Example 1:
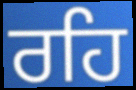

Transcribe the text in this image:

ਰਹਿ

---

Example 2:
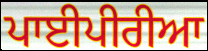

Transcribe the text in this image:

ਪਾਈਪੀਰੀਆ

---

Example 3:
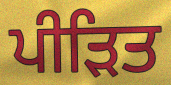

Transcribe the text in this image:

ਪੀੜਿਤ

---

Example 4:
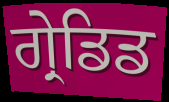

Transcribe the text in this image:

ਗ੍ਰੇਡਿਡ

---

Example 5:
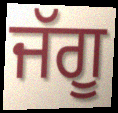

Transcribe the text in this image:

ਜੱਗੂ